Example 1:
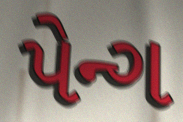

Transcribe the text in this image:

પેન્ગ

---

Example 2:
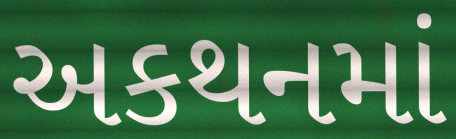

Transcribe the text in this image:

અકથનમાં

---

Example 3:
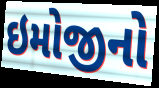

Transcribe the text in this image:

ઇમોજીનો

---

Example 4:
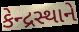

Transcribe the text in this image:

કેન્દ્રસ્થાને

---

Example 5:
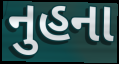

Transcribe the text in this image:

નુહના